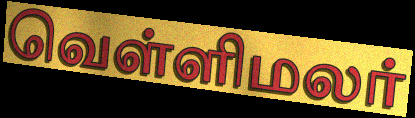
வெள்ளிமலர்